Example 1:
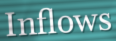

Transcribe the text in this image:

Inflows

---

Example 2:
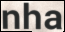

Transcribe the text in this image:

nha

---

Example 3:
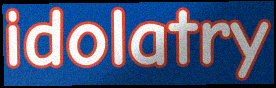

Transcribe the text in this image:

idolatry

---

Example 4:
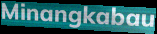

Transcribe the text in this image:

Minangkabau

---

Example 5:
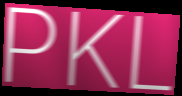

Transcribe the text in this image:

PKL